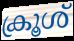
ക്രൂശ്